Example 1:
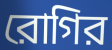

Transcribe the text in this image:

রোগির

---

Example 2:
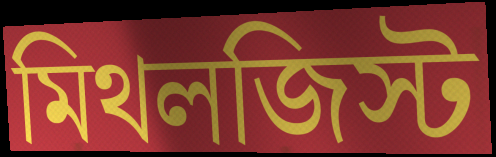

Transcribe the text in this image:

মিথলজিস্ট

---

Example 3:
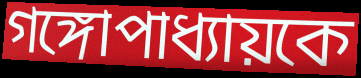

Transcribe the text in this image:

গঙ্গোপাধ্যায়কে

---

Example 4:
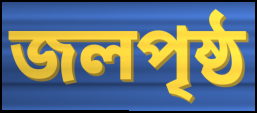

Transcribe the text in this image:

জলপৃষ্ঠ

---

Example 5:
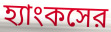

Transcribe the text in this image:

হ্যাংকসের